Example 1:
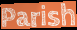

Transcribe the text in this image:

Parish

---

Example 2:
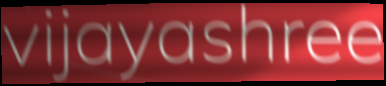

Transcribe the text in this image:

vijayashree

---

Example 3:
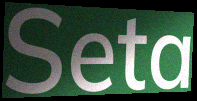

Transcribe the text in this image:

Seta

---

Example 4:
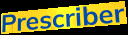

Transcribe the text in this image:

Prescriber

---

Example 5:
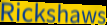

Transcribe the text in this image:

Rickshaws